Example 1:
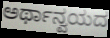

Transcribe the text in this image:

ಅರ್ಥಾನ್ವಯದ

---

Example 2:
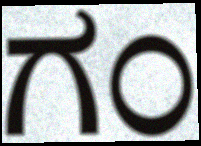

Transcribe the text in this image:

ಗಂ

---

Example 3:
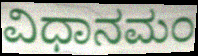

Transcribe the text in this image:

ವಿಧಾನಮಂ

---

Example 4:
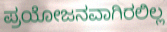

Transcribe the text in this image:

ಪ್ರಯೋಜನವಾಗಿರಲಿಲ್ಲ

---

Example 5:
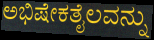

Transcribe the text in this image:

ಅಭಿಷೇಕತೈಲವನ್ನು